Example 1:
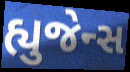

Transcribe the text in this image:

હ્યુજેન્સ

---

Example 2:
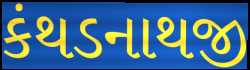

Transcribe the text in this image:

કંથડનાથજી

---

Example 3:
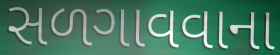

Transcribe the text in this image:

સળગાવવાના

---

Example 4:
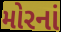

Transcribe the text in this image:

મોરનાં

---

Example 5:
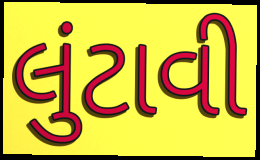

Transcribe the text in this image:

લુંટાવી